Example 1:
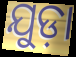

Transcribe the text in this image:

ଯୁଡ଼ା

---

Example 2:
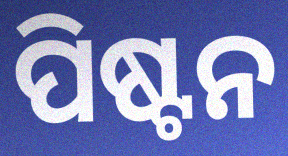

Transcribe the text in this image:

ପିଷ୍ଟନ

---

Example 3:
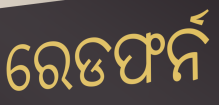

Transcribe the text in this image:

ରେଡଫର୍ନ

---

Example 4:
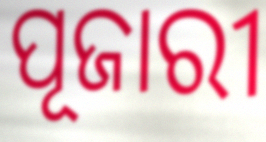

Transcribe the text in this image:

ପୂଜାରୀ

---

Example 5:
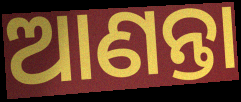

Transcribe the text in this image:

ଆଣନ୍ତା